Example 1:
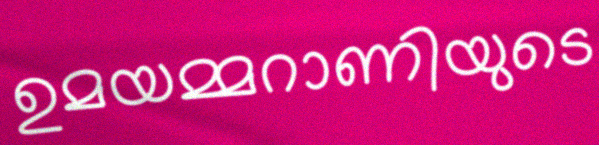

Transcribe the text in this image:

ഉമയമ്മറാണിയുടെ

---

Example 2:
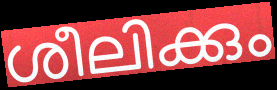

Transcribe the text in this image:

ശീലിക്കും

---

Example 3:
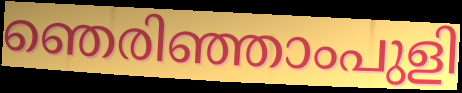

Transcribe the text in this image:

ഞെരിഞ്ഞാംപുളി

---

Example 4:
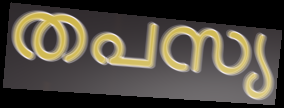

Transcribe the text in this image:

തപസ്യ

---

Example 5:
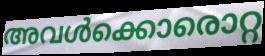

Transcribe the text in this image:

അവൾക്കൊരൊറ്റ